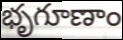
భృగూణాం